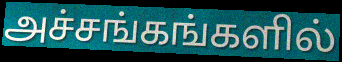
அச்சங்கங்களில்